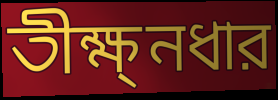
তীক্ষ্নধার